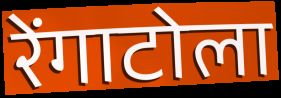
रेंगाटोला